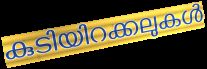
കുടിയിറക്കലുകൾ